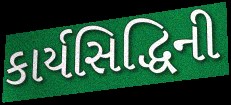
કાર્યસિદ્ધિની